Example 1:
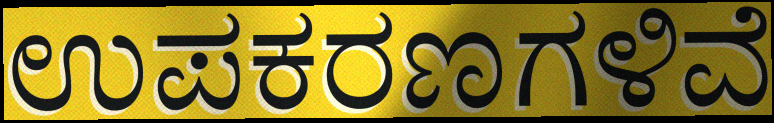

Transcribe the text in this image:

ಉಪಕರಣಗಳಿವೆ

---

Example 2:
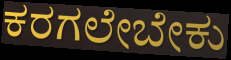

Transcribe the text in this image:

ಕರಗಲೇಬೇಕು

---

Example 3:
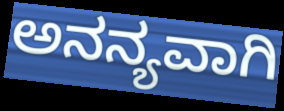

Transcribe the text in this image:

ಅನನ್ಯವಾಗಿ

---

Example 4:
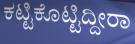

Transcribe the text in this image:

ಕಟ್ಟಿಕೊಟ್ಟಿದ್ದೀರಾ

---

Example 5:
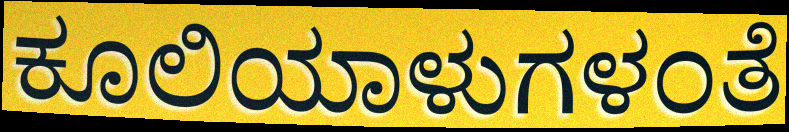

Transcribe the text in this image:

ಕೂಲಿಯಾಳುಗಳಂತೆ